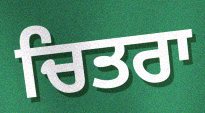
ਚਿਤਰਾ